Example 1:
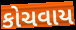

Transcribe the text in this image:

કોચવાય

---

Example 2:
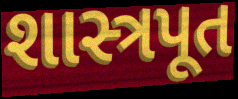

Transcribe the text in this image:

શાસ્ત્રપૂત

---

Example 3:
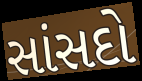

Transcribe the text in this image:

સાંસદો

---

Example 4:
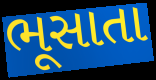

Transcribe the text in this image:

ભૂસાતા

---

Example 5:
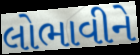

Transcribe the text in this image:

લોભાવીને